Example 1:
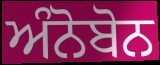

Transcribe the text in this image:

ਅੰਨੋਬੋਨ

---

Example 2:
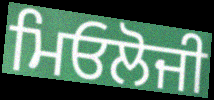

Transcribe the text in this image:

ਮਿਓਲੋਜੀ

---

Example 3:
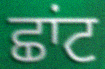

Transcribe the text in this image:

ਛਾਂਟ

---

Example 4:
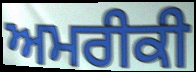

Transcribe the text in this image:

ਅਮਰੀਕੀ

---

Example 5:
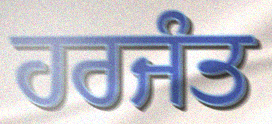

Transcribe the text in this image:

ਹਰਜੰਤ